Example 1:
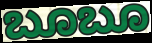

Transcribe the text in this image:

ಬೂಬೂ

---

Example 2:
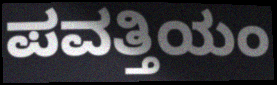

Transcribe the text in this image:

ಪವತ್ತಿಯಂ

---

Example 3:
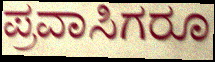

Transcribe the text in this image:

ಪ್ರವಾಸಿಗರೂ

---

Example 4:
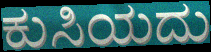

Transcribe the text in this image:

ಕುಸಿಯದು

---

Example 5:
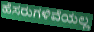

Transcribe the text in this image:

ಹೆಸರುಗಳಿವೆಯಲ್ಲ